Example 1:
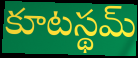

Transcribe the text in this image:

కూటస్థమ్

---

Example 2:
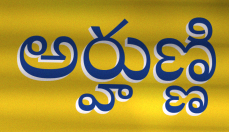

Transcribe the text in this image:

అర్హుణ్ణి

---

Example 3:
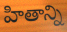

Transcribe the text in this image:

హితాన్ని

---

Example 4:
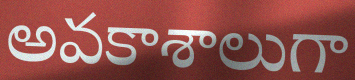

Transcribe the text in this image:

అవకాశాలుగా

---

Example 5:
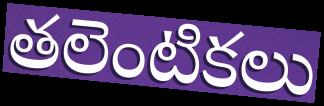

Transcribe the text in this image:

తలెంటికలు